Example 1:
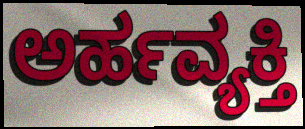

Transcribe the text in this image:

ಅರ್ಹವ್ಯಕ್ತಿ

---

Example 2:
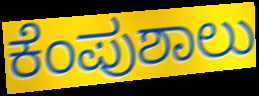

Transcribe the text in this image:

ಕೆಂಪುಶಾಲು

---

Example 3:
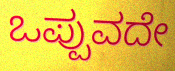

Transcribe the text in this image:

ಒಪ್ಪುವದೇ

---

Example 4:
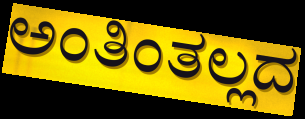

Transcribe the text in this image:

ಅಂತಿಂತಲ್ಲದ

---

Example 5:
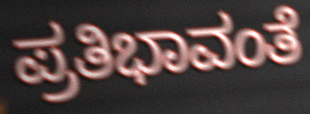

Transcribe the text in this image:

ಪ್ರತಿಭಾವಂತೆ